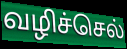
வழிச்செல்